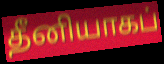
தீனியாகப்